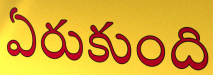
ఏరుకుంది